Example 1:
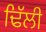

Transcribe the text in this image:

ਢਿੱਲੀ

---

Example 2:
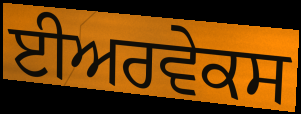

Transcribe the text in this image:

ਈਅਰਵੇਕਸ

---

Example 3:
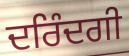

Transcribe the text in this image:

ਦਰਿੰਦਗੀ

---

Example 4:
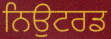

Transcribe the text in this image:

ਨਿਉਟਰਡ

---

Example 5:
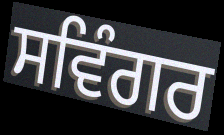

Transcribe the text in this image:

ਸਵਿੰਗਰ